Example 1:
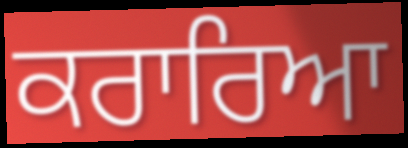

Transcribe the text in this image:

ਕਰਾਰਿਆ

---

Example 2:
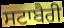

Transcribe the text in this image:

ਸਟਾਬੈਰੀ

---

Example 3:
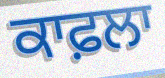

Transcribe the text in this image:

ਕਾਫ਼ਲਾ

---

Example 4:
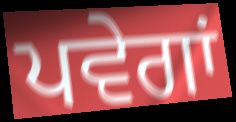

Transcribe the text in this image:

ਪਵੇਗਾਂ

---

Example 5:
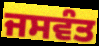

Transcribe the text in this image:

ਜਸਵੰਤ